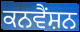
ਕਨਵੈੰਸ਼ਨ